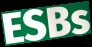
ESBs